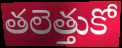
తలెత్తుకో